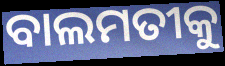
ବାଲମତୀକୁ